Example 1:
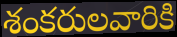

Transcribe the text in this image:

శంకరులవారికి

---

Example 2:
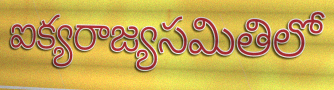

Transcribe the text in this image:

ఐక్యరాజ్యసమితిలో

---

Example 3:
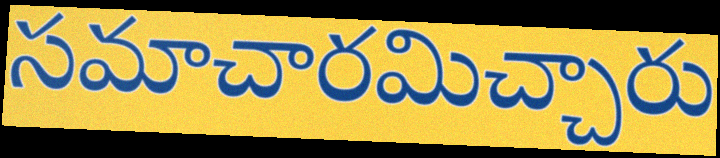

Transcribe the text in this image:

సమాచారమిచ్చారు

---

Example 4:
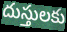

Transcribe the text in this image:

దుస్తులకు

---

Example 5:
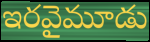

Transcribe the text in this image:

ఇరవైమూడు